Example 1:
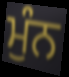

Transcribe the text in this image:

ਮੁੰਨ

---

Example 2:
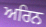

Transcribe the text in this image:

ਅਰਿਨ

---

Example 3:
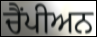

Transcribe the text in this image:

ਚੈਂਪੀਅਨ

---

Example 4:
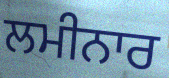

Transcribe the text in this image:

ਲਮੀਨਾਰ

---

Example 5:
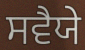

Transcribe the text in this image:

ਸਵੈਯੇ